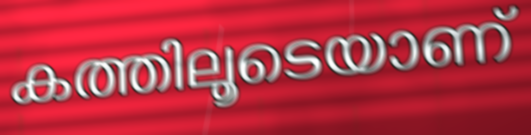
കത്തിലൂടെയാണ്